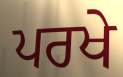
ਪਰਖੇ